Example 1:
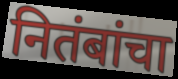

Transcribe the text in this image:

नितंबांचा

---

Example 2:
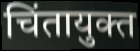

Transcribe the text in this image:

चिंतायुक्त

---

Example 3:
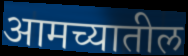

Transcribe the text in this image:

आमच्यातील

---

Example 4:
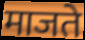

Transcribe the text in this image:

माजते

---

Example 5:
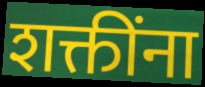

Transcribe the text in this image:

शक्तींना